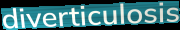
diverticulosis